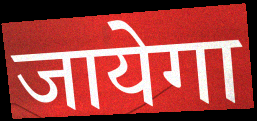
जायेगा